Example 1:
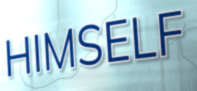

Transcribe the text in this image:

HIMSELF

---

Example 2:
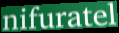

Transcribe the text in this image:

nifuratel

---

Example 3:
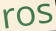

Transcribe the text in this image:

ros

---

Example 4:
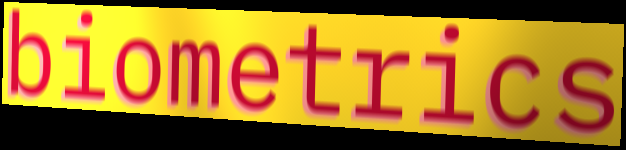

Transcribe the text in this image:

biometrics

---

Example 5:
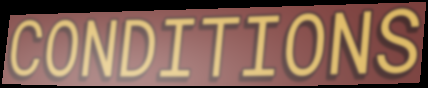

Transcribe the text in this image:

CONDITIONS